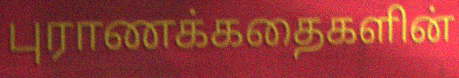
புராணக்கதைகளின்